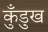
कुँड़ुख